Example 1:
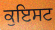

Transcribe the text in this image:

ਕੁਇਸਟ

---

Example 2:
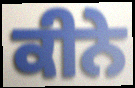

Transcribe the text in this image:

ਕੀਨੇ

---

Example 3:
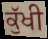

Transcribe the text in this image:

ਕੁੱਖੀ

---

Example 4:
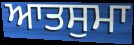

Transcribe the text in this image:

ਆਤਸੁਮਾ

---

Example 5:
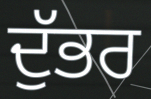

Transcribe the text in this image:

ਦੁੱਭਰ